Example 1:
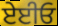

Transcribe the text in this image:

ਏਈਓ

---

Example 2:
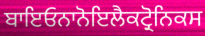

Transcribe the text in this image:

ਬਾਇਓਨਾਨੋਇਲੈਕਟ੍ਰੋਨਿਕਸ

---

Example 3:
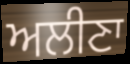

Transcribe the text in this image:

ਅਲੀਣਾ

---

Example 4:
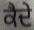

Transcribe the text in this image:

ਕੈਦੇ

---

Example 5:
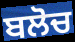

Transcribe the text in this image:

ਬਲੋਚ